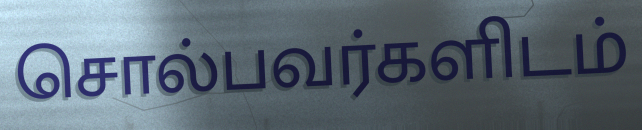
சொல்பவர்களிடம்